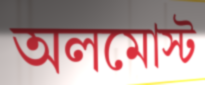
অলমোস্ট